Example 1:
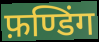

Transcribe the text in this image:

फ़ण्डिंग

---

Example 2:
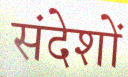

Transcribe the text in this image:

संदेशों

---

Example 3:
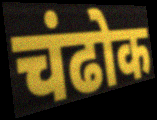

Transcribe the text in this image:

चंढोक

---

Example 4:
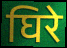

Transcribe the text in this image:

घिरे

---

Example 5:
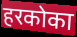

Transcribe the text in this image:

हरकोका